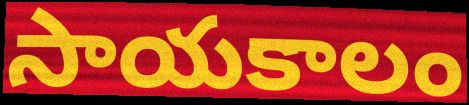
సాయకాలం